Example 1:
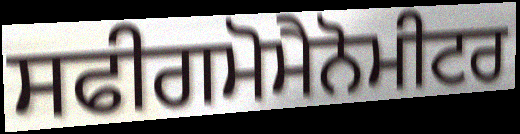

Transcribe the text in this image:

ਸਫੀਗਮੋਮੈਨੋਮੀਟਰ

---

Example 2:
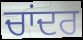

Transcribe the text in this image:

ਚਾਂਦਰ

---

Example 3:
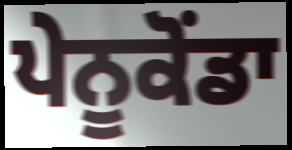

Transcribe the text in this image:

ਪੇਨੂਕੋਂਡਾ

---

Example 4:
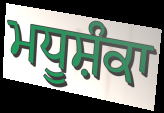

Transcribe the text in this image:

ਮਧੂਸ਼ੰਕਾ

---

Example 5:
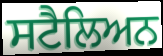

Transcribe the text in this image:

ਸਟੈਲਿਅਨ